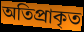
অতিপ্ৰাকৃত